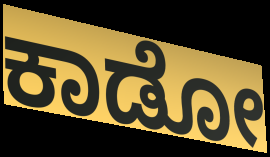
ಕಾಡೋ